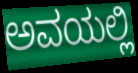
ಅವಯಲ್ಲಿ